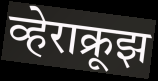
व्हेराक्रूझ